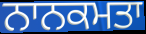
ਨਾਨਕਮਤਾ